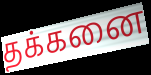
தக்கனை